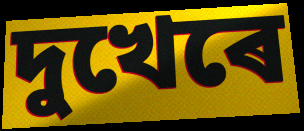
দুখেৰে